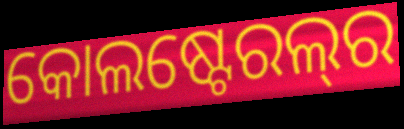
କୋଲଷ୍ଟେରଲ୍‌ର